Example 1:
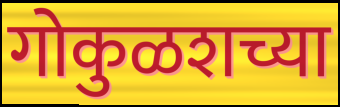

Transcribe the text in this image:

गोकुळशच्या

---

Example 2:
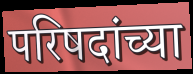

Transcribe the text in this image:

परिषदांच्या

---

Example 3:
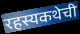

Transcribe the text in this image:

रहस्यकथेची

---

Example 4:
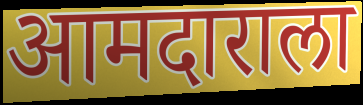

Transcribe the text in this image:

आमदाराला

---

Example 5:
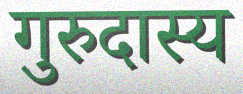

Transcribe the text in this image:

गुरुदास्य